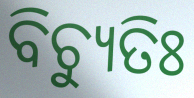
ବିଚ୍ୟୁତିଃ